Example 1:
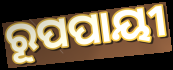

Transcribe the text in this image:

ରୂପପାୟୀ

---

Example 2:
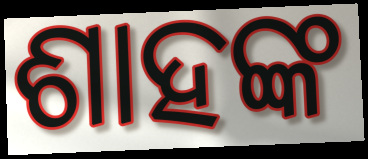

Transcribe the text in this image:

ଶାହଙ୍କ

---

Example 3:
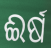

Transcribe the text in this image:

ଈର୍ଷ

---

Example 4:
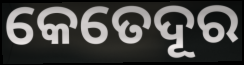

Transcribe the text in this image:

କେତେଦୂର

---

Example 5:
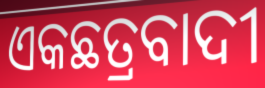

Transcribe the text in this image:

ଏକଛତ୍ରବାଦୀ